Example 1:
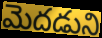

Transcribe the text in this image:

మెదడుని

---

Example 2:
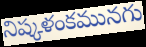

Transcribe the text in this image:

నిష్కళంకమునగు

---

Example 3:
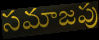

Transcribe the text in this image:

సమాజపు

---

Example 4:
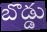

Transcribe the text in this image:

బొడ్డు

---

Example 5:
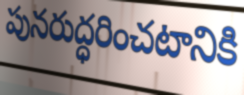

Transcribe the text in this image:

పునరుద్ధరించటానికి